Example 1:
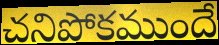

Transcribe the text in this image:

చనిపోకముందే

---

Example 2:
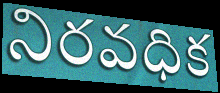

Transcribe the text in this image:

నిరవధిక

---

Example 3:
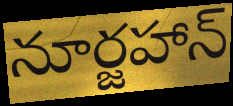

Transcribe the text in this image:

నూర్జహాన్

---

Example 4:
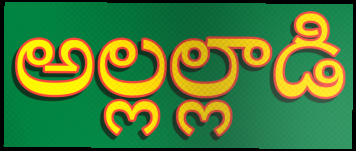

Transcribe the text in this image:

అల్లల్లాడి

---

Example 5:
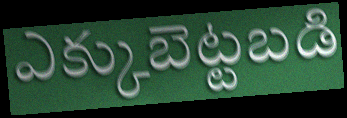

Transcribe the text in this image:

ఎక్కుబెట్టబడి